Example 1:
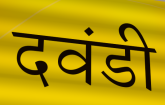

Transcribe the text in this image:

दवंडी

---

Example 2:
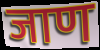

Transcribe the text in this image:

जाण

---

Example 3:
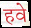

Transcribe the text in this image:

हवे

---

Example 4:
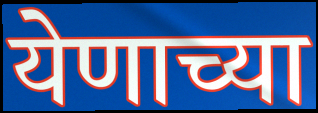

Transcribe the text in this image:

येणाच्या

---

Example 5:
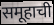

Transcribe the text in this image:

समूहाची